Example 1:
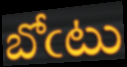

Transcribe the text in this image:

బోఁటు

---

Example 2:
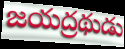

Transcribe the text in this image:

జయద్రథుడు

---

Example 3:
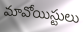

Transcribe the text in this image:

మావోయిస్టులు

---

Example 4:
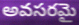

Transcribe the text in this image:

అవసరమై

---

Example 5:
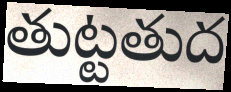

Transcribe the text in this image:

తుట్టతుద